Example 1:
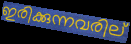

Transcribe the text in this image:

ഇരിക്കുന്നവരില്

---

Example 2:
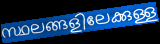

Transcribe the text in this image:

സ്ഥലങ്ങളിലേക്കുള്ള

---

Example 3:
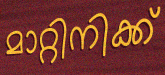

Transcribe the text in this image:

മാറ്റിനിക്ക്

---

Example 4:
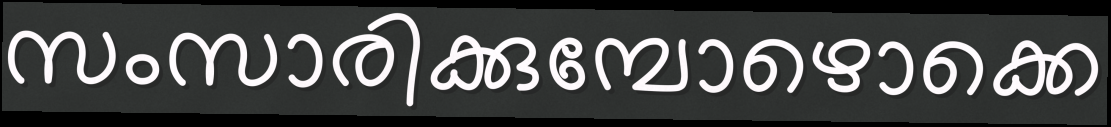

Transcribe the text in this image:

സംസാരിക്കുമ്പോഴൊക്കെ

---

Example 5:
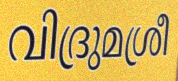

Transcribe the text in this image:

വിദ്രുമശ്രീ